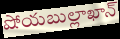
షోయబుల్లాఖాన్